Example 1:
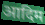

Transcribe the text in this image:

आदिम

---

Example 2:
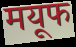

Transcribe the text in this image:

मयूफ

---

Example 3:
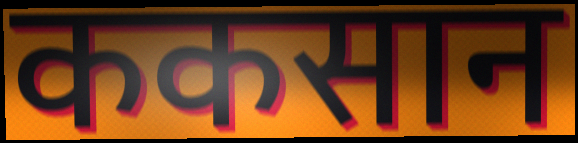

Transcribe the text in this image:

ककसान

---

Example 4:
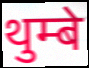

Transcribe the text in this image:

थुम्बे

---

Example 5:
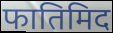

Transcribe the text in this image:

फातिमिद